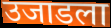
उजाडला